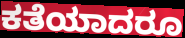
ಕತೆಯಾದರೂ